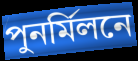
পুনর্মিলনে